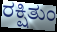
ರಕ್ಷಿತುಂ